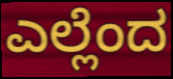
ಎಲ್ಲೆಂದ